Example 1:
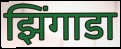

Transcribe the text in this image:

झिंगाडा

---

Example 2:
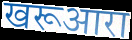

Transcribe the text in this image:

खरूआरा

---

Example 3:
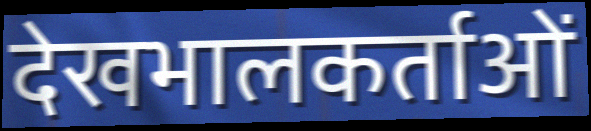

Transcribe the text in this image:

देखभालकर्ताओं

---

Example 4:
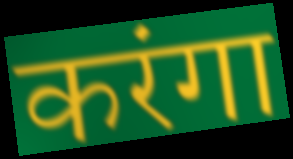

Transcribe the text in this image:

करंगा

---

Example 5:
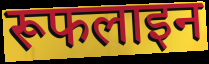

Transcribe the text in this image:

रूफलाइन